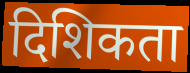
दिशिकता